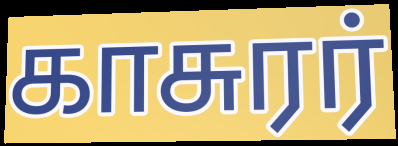
காசுரர்